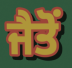
ਜੈਤੋਂ